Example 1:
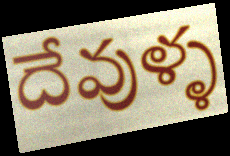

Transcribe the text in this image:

దేవుళ్ళ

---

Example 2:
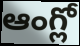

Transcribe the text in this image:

ఆంగ్లో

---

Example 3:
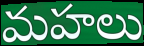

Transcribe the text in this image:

మహలు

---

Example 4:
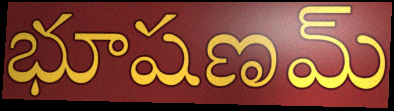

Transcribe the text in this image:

భూషణమ్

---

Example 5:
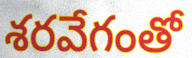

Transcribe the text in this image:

శరవేగంతో